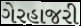
ગેરહાજરી